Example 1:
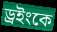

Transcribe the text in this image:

ড্রইংকে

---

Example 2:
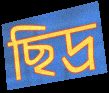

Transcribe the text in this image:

ছিদ্র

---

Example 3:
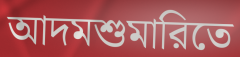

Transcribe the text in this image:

আদমশুমারিতে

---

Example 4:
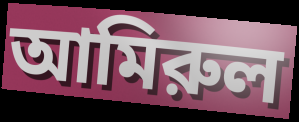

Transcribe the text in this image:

আমিরুল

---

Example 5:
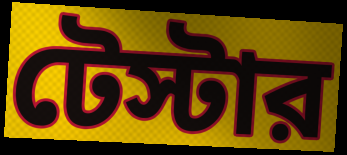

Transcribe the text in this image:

টেস্টার